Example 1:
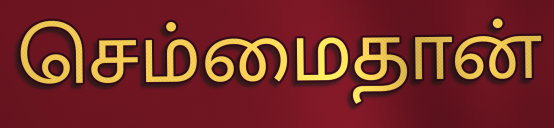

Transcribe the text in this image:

செம்மைதான்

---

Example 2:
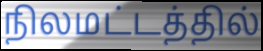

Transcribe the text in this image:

நிலமட்டத்தில்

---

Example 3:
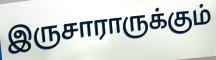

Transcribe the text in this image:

இருசாராருக்கும்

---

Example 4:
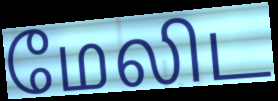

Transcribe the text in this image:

மேலிட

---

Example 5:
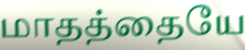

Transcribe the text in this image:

மாதத்தையே